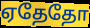
ஏதேதோ